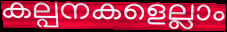
കല്പനകളെല്ലാം